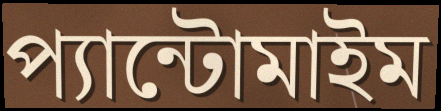
প্যান্টোমাইম